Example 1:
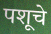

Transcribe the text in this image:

पशूचे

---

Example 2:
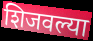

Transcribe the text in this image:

शिजवल्या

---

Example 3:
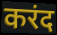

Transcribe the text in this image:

करंद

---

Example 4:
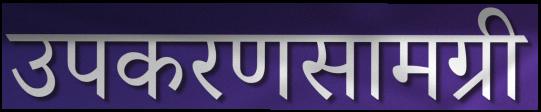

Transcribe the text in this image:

उपकरणसामग्री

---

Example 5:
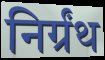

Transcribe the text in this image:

निर्ग्रंथ